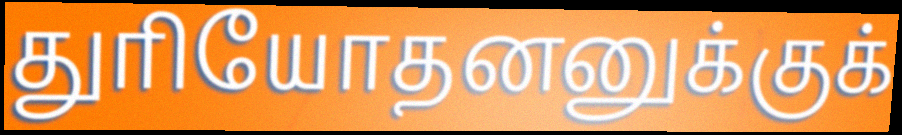
துரியோதனனுக்குக்